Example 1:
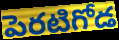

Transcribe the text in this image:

పెరటిగోడ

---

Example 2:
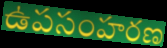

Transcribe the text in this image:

ఉపసంహరణ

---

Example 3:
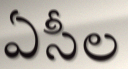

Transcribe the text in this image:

ఏసీల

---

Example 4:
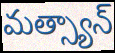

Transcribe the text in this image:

మత్స్యాన్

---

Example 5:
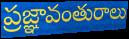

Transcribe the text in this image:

ప్రజ్ఞావంతురాలు